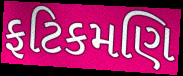
ફટિકમણિ